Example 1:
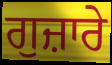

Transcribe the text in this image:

ਗੁਜ਼ਾਰੇ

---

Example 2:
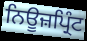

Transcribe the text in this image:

ਨਿਊਜ਼ਪ੍ਰਿੰਟ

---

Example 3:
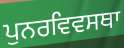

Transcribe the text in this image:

ਪੁਨਰਵਿਵਸਥਾ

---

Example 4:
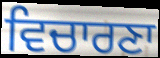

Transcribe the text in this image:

ਵਿਚਾਰਣਾ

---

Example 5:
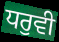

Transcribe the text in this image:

ਧਰੁਵੀ